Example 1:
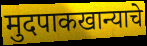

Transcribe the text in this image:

मुदपाकखान्याचे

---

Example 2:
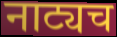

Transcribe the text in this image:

नाट्यच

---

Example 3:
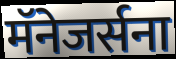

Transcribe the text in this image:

मॅनेजर्सना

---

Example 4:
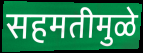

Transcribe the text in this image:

सहमतीमुळे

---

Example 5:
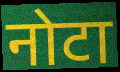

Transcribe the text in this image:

नोटा